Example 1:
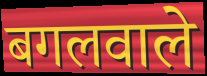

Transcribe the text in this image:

बगलवाले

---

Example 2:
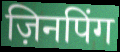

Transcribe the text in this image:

ज़िनपिंग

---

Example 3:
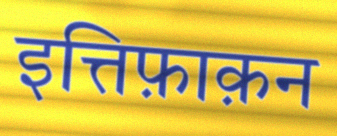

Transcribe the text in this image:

इत्तिफ़ाक़न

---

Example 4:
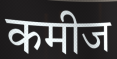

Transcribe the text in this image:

कमीज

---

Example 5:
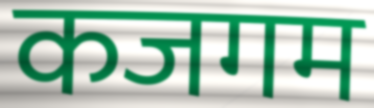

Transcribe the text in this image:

कजगम